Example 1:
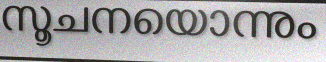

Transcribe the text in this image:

സൂചനയൊന്നും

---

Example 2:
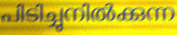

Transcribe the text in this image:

പിടിച്ചുനിൽക്കുന്ന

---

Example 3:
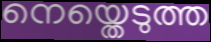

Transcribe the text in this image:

നെയ്തെടുത്ത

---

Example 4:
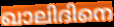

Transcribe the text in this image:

ഖാലിദിനെ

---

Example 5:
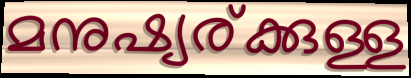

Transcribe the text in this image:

മനുഷ്യര്ക്കുള്ള